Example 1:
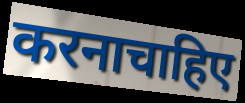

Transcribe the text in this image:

करनाचाहिए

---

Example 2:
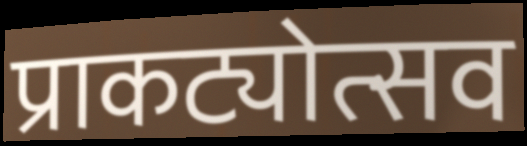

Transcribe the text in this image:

प्राकट्योत्सव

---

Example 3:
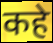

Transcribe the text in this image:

कहे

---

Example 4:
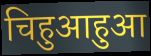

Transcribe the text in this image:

चिहुआहुआ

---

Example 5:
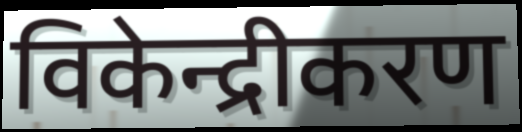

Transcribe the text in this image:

विकेन्द्रीकरण